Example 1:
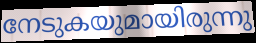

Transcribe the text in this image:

നേടുകയുമായിരുന്നു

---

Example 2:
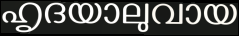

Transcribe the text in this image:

ഹൃദയാലുവായ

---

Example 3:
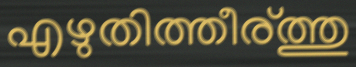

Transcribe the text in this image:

എഴുതിത്തീര്ത്തു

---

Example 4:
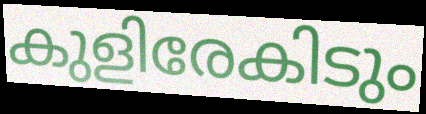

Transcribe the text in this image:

കുളിരേകിടും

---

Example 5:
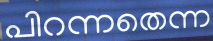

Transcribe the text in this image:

പിറന്നതെന്ന